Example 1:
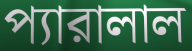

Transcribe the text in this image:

প্যারালাল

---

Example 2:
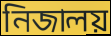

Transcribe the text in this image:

নিজালয়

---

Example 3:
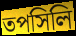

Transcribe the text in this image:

তপসিলি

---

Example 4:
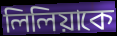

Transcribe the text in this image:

লিলিয়াকে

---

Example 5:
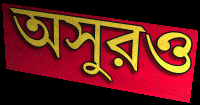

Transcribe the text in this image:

অসুরও